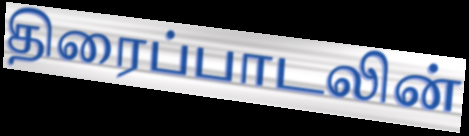
திரைப்பாடலின்